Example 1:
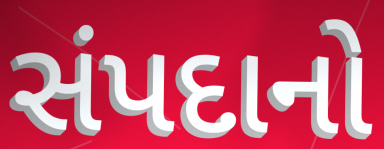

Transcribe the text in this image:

સંપદાનો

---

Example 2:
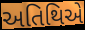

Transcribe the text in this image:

અતિથિએ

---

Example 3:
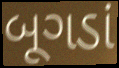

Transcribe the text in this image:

બૂગડાં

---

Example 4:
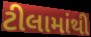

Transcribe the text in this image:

ટીલામાંથી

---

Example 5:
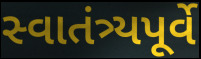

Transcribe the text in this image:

સ્વાતંત્ર્યપૂર્વે